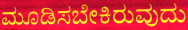
ಮೂಡಿಸಬೇಕಿರುವುದು